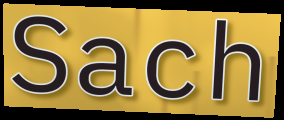
Sach